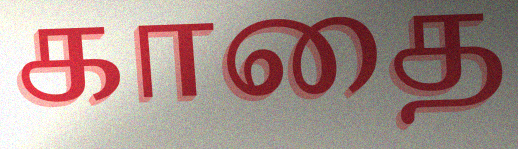
காதை